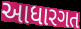
આધારગત